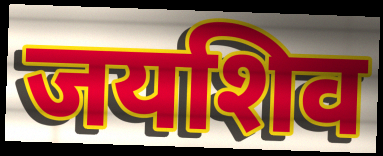
जयशिव